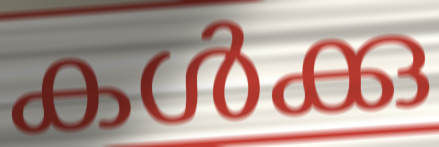
കൾക്കു